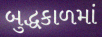
બુદ્ધકાળમાં